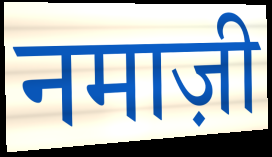
नमाज़ी